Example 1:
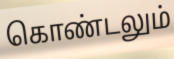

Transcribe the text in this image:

கொண்டலும்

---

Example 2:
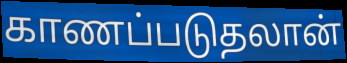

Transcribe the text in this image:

காணப்படுதலான்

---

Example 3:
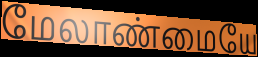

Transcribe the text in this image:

மேலாண்மையே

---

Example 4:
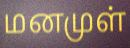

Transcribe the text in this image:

மனமுள்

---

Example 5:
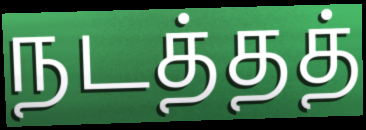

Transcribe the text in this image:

நடத்தத்